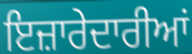
ਇਜ਼ਾਰੇਦਾਰੀਆਂ